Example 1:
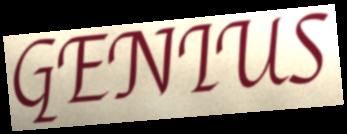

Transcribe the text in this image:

GENIUS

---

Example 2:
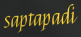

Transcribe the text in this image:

saptapadi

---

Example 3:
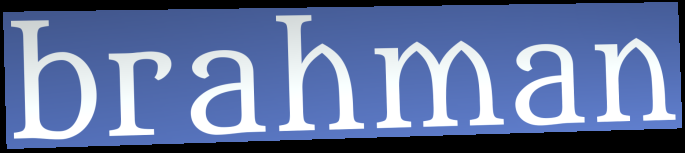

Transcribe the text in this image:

brahman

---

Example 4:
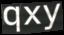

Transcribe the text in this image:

qxy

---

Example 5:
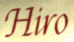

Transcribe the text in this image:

Hiro